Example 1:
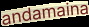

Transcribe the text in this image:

andamaina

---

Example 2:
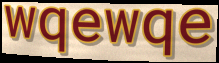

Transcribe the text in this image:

wqewqe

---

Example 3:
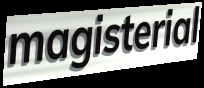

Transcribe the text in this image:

magisterial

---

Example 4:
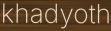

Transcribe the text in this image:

khadyoth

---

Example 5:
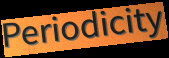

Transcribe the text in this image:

Periodicity